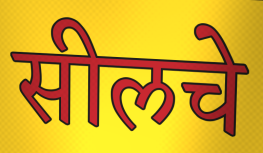
सीलचे